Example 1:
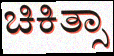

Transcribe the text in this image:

ಚಿಕಿತ್ಸಾ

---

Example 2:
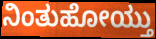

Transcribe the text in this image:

ನಿಂತುಹೋಯ್ತು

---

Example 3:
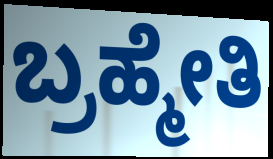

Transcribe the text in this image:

ಬ್ರಹ್ಮೇತಿ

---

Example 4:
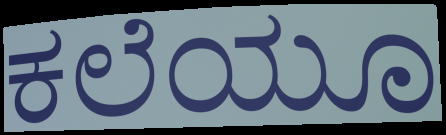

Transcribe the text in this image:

ಕಲೆಯೂ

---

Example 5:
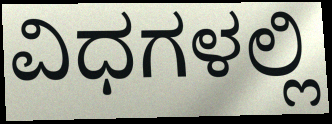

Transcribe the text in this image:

ವಿಧಗಳಲ್ಲಿ